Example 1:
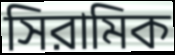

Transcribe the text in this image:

সিরামিক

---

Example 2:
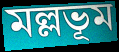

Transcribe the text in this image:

মল্লভূম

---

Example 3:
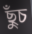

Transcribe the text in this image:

ছুঁচ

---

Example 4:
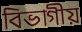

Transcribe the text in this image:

বিভাগীয়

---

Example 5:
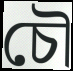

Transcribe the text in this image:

চৌ